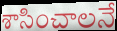
శాసించాలనే